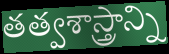
తత్వశాస్త్రాన్ని